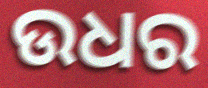
ଉଧର